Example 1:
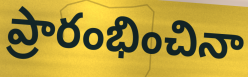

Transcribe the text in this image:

ప్రారంభించినా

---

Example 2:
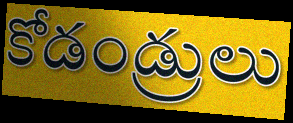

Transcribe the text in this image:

కోడండ్రులు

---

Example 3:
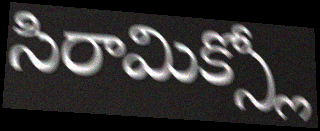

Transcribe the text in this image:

సిరామిక్స్లో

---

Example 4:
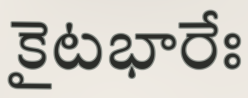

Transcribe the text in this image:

కైటభారేః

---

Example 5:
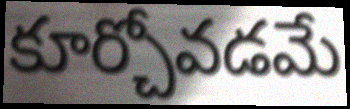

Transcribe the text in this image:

కూర్చోవడమే